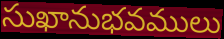
సుఖానుభవములు